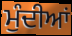
ਮੁੰਦੀਆਂ